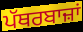
ਪੱਥਰਬਾਜ਼ਾਂ